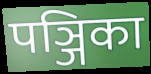
पञ्जिका